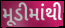
મૂડીમાંથી